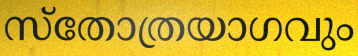
സ്തോത്രയാഗവും